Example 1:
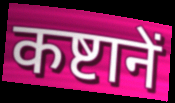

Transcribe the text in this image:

कष्टानें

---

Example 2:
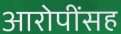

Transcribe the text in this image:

आरोपींसह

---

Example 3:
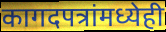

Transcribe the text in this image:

कागदपत्रांमध्येही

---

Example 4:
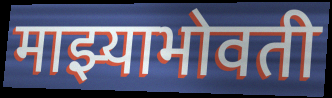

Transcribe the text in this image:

माझ्याभोवती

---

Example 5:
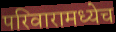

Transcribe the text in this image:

परिवारामध्येच